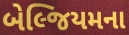
બેલ્જિયમના